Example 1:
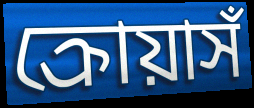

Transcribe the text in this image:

ক্রোয়াসঁ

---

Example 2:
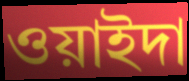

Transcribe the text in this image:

ওয়াইদা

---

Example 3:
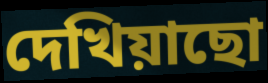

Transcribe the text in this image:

দেখিয়াছো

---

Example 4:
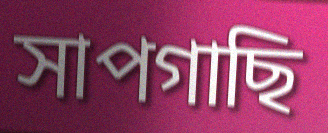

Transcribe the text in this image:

সাপগাছি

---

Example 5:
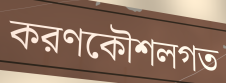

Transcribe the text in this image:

করণকৌশলগত